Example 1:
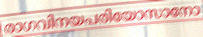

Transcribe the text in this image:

രാഗവിനയപരിയോസാനോ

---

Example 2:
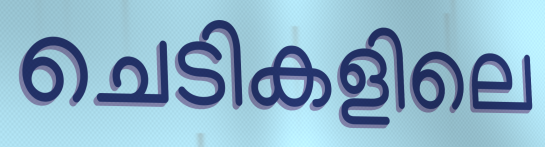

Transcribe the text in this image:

ചെടികളിലെ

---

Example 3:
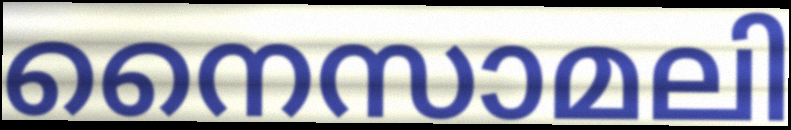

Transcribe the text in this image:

നൈസാമലി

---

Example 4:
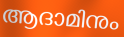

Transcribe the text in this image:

ആദാമിനും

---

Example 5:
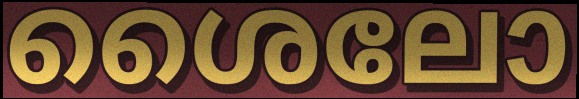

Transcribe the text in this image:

ശൈലോ